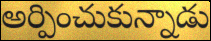
అర్పించుకున్నాడు